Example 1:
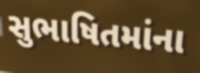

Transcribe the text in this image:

સુભાષિતમાંના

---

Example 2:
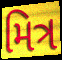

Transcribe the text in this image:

મિત્ર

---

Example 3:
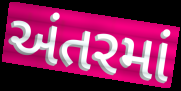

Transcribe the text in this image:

અંતરમાં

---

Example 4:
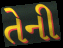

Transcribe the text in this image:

તેની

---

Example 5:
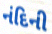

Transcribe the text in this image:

નંદિની